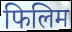
फिलिम